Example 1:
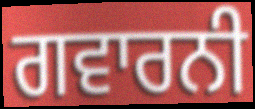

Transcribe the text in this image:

ਗਵਾਰਨੀ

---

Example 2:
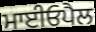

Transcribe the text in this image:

ਮਾਈਓਪੈਲ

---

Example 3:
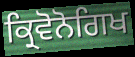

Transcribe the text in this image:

ਕ੍ਰਿਵੋਨੋਗਿਖ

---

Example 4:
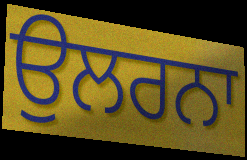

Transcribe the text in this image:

ਉਲਰਨਾ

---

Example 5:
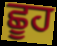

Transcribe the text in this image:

ਛੂਹ